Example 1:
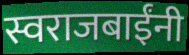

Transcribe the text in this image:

स्वराजबाईंनी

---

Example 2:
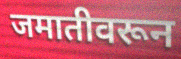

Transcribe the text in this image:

जमातीवरून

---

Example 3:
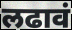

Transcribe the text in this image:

लढावं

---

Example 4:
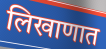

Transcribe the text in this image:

लिखाणात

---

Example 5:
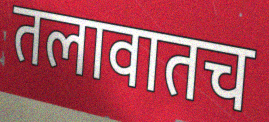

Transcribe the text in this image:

तलावातच